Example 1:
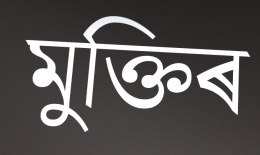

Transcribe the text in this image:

মুক্তিৰ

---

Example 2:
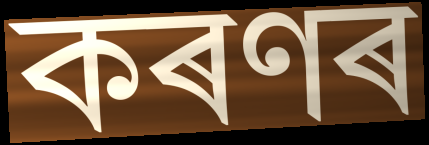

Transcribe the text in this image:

কৰণৰ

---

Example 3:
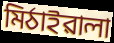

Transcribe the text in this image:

মিঠাইৱালা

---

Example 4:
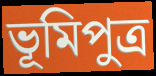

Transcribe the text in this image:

ভূমিপুত্ৰ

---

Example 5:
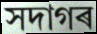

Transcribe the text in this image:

সদাগৰ